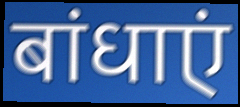
बांधाएं